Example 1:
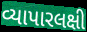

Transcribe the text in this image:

વ્યાપારલક્ષી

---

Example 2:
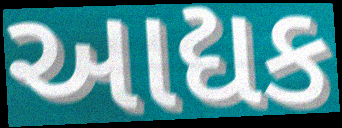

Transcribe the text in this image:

આદ્યક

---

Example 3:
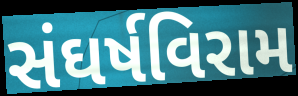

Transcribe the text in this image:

સંઘર્ષવિરામ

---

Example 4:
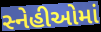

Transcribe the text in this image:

સ્નેહીઓમાં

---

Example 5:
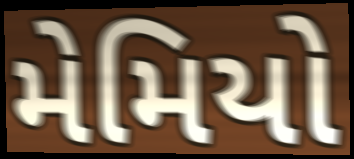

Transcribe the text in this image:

મેમિયો